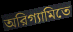
অরিগ্যামিতে